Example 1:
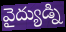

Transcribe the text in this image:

వైద్యుడ్ని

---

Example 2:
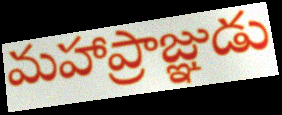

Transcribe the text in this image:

మహాప్రాజ్ఞుడు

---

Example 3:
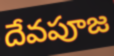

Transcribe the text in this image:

దేవపూజ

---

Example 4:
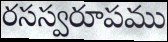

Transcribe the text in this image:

రసస్వరూపము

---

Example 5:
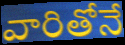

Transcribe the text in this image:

వారితోనే